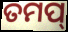
ତମପ୍